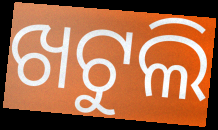
ଖଟୁଲି